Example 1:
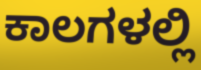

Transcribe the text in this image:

ಕಾಲಗಳಲ್ಲಿ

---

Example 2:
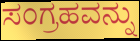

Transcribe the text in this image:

ಸಂಗ್ರಹವನ್ನು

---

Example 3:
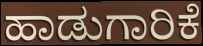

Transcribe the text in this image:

ಹಾಡುಗಾರಿಕೆ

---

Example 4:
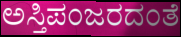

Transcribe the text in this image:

ಅಸ್ತಿಪಂಜರದಂತೆ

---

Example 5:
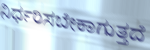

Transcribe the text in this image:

ನಿರ್ಧರಿಸಬೇಕಾಗುತ್ತದೆ